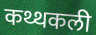
कथ्थकली